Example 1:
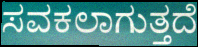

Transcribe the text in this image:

ಸವಕಲಾಗುತ್ತದೆ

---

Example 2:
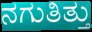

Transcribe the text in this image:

ನಗುತಿತ್ತು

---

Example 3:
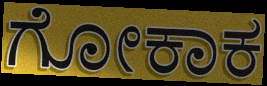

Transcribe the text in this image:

ಗೋಕಾಕ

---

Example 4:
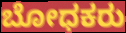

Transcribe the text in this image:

ಬೋಧಕರು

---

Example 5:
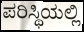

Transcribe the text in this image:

ಪರಿಸ್ಥಿಯಲ್ಲಿ